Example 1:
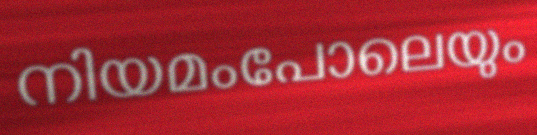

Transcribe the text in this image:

നിയമംപോലെയും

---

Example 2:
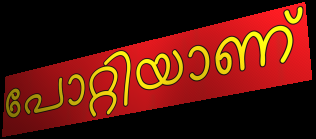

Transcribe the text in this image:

പോറ്റിയാണ്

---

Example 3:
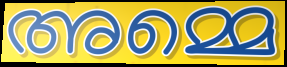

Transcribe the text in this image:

അമ്മെ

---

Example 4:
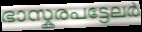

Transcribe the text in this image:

ഭാസ്കരപട്ടേലർ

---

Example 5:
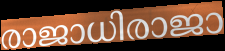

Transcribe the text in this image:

രാജാധിരാജാ